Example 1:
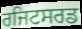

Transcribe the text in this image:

ਰਜਿਟਸਰਡ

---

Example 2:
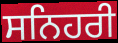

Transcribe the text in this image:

ਸਨਿਹਰੀ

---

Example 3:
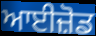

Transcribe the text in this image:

ਆਈਜ਼ੋਡ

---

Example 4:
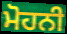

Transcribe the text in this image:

ਮੋਹਨੀ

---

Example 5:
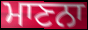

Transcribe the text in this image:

ਮਾਣਨਾ